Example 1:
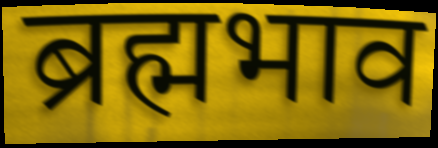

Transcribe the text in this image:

ब्रह्मभाव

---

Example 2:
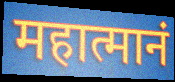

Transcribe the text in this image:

महात्मानं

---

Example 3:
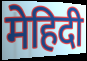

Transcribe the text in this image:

मेहिदी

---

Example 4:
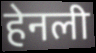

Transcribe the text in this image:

हेनली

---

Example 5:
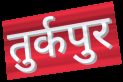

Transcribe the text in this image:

तुर्कपुर